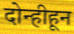
दोन्हीहून